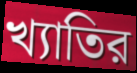
খ্যাতির